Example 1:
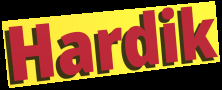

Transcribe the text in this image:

Hardik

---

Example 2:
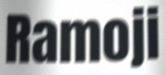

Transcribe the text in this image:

Ramoji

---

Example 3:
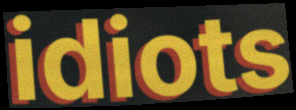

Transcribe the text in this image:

idiots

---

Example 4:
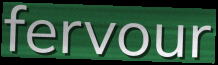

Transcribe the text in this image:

fervour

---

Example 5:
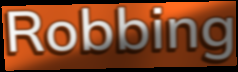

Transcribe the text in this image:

Robbing